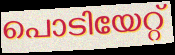
പൊടിയേറ്റ്